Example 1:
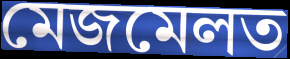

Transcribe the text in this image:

মেজমেলত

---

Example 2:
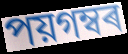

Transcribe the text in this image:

পয়গম্বৰ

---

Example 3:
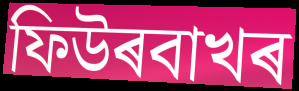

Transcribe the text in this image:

ফিউৰবাখৰ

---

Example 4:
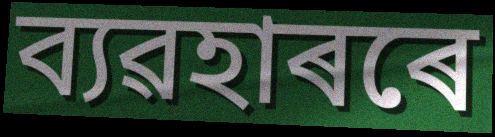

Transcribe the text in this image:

ব্যৱহাৰৰে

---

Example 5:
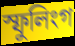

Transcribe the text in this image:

স্ফুলিংগ